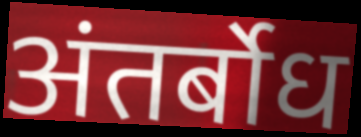
अंतर्बोध